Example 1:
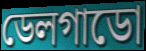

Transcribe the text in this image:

ডেলগাডো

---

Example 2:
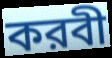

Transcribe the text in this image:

করবী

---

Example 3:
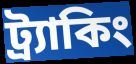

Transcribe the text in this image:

ট্র্যাকিং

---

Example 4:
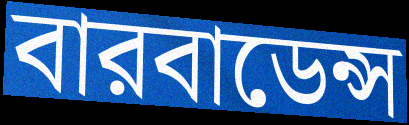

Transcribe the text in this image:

বারবাডেন্স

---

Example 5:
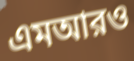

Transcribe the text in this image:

এমআরও